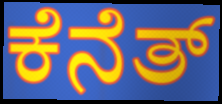
ಕೆನೆತ್